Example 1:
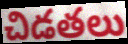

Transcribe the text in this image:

చిడతలు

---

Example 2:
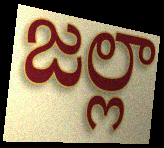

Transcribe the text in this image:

జల్లా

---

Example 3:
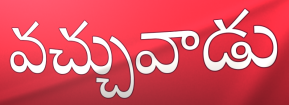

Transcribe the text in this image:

వచ్చువాడు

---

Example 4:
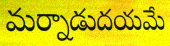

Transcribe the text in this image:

మర్నాడుదయమే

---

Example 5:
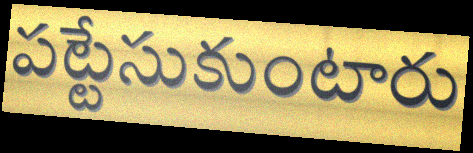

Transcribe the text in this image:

పట్టేసుకుంటారు